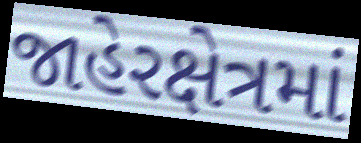
જાહેરક્ષેત્રમાં